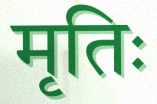
मृतिः